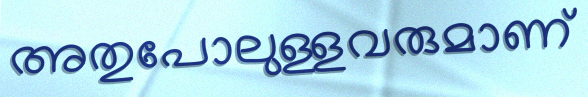
അതുപോലുള്ളവരുമാണ്